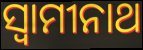
ସ୍ୱାମୀନାଥ